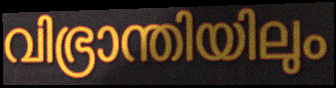
വിഭ്രാന്തിയിലും